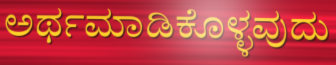
ಅರ್ಥಮಾಡಿಕೊಳ್ಳವುದು